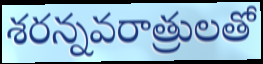
శరన్నవరాత్రులతో